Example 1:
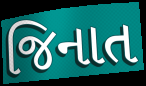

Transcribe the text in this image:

જિનાત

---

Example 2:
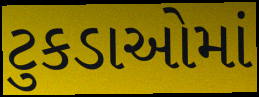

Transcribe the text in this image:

ટુકડાઓમાં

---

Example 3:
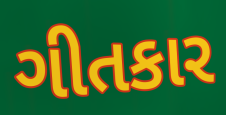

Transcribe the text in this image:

ગીતકાર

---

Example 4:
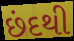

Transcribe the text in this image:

છંદથી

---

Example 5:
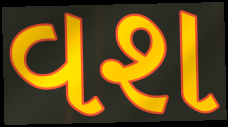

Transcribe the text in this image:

વશ